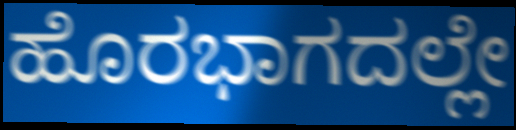
ಹೊರಭಾಗದಲ್ಲೇ